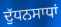
ਦੁੱਧਨਸਾਧਾਂ